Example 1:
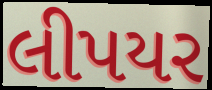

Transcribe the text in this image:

લીપયર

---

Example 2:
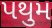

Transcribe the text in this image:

પથુમ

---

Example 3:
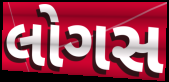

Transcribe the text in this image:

લોગસ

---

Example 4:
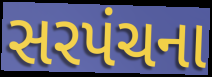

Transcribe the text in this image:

સરપંચના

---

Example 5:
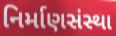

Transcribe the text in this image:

નિર્માણસંસ્થા